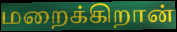
மறைக்கிறான்